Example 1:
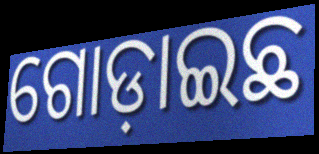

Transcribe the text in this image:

ଗୋଡ଼ାଇଛ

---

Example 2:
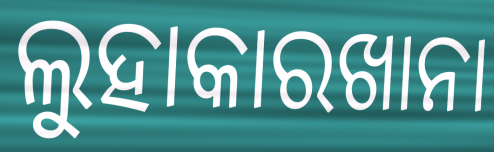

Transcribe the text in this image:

ଲୁହାକାରଖାନା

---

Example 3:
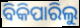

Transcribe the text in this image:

ବିକିପାରିଲୁ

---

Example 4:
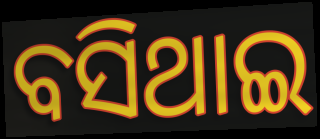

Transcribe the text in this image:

ବସିଥାଇ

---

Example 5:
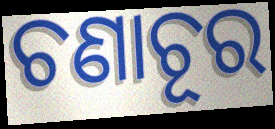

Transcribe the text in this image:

ଚଣାଚୂର